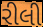
રીલી